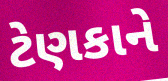
ટેણકાને